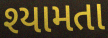
શ્યામતા